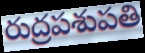
రుద్రపశుపతి